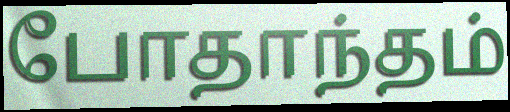
போதாந்தம்